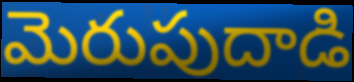
మెరుపుదాడి